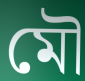
মৌ